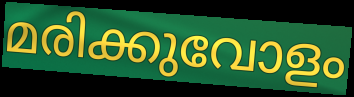
മരിക്കുവോളം